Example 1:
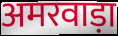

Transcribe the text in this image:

अमरवाड़ा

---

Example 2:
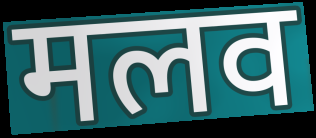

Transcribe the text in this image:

मलव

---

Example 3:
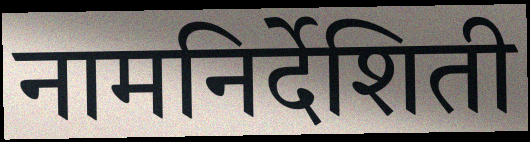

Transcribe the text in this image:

नामनिर्देशिती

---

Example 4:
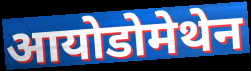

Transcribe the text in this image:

आयोडोमेथेन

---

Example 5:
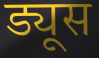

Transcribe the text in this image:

ड्यूस